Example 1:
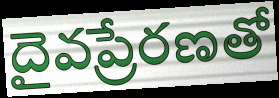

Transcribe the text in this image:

దైవప్రేరణతో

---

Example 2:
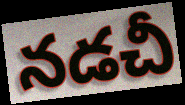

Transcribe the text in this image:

నడచీ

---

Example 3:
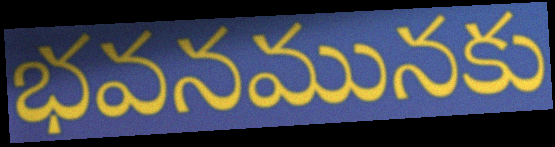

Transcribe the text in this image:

భవనమునకు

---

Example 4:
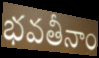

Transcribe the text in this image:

భవతీనాం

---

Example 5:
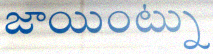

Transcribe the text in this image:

జాయింట్ను